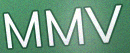
MMV